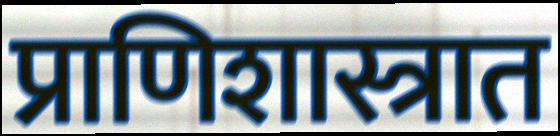
प्राणिशास्त्रात